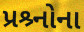
પ્રશ્ર્નોના